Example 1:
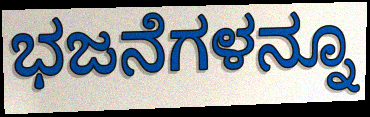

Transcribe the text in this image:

ಭಜನೆಗಳನ್ನೂ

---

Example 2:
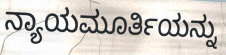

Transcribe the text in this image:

ನ್ಯಾಯಮೂರ್ತಿಯನ್ನು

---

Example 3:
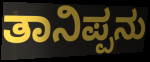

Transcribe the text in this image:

ತಾನಿಪ್ಪನು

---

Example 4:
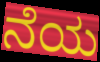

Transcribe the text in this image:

ನೆಯ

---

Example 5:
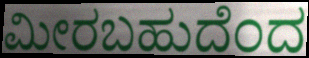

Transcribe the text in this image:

ಮೀರಬಹುದೆಂದ